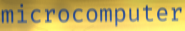
microcomputer